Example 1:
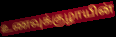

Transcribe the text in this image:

உணவுக்குழாயின்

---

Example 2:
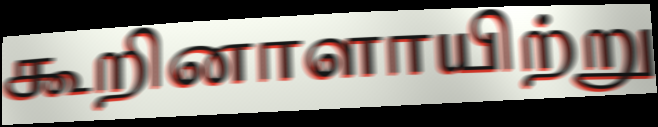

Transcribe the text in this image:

கூறினாளாயிற்று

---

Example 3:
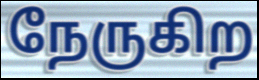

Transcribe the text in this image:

நேருகிற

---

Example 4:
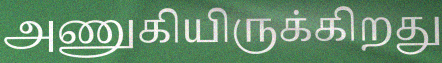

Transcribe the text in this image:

அணுகியிருக்கிறது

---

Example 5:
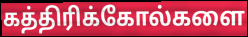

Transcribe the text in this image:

கத்திரிக்கோல்களை